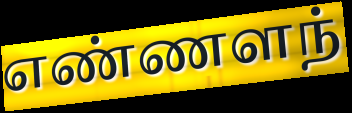
எண்ணளந்